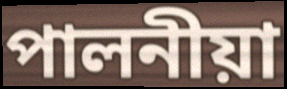
পালনীয়া